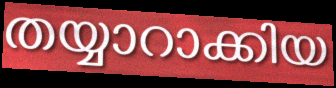
തയ്യാറാക്കിയ